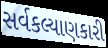
સર્વકલ્યાણકારી